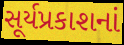
સૂર્યપ્રકાશનાં